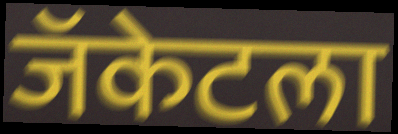
जॅकेटला